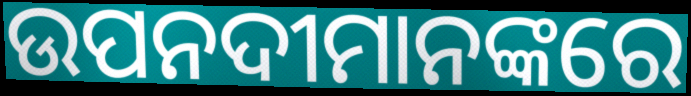
ଉପନଦୀମାନଙ୍କରେ